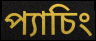
প্যাচিং